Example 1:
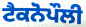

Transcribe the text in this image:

ਟੈਕਨੋਪੌਲੀ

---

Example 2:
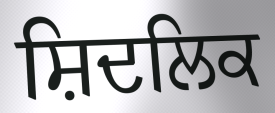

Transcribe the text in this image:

ਸ਼ਿਦਲਿਕ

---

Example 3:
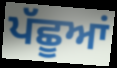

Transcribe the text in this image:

ਪੱਛੂਆਂ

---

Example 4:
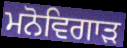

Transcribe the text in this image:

ਮਨੋਵਿਗਾੜ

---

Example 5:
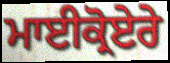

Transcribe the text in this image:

ਮਾਈਕ੍ਰੋਏਰੇ